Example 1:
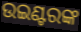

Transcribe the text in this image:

ଉଇଣ୍ଟରଙ୍କ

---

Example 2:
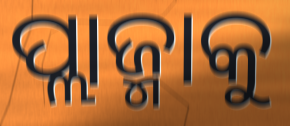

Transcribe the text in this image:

ପ୍ଲାଜ୍ମାକୁ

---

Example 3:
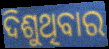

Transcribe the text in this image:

ଦିଶୁଥିବାର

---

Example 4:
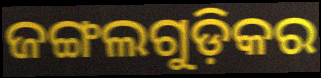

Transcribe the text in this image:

ଜଙ୍ଗଲଗୁଡ଼ିକର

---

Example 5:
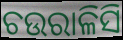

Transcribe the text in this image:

ଚଉରାଳିସି